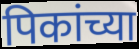
पिकांच्या